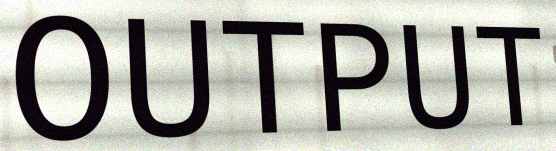
OUTPUT